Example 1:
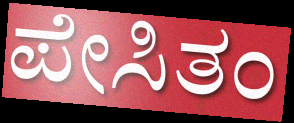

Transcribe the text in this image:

ಪೇಸಿತಂ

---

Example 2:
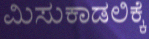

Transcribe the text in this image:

ಮಿಸುಕಾಡಲಿಕ್ಕೆ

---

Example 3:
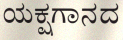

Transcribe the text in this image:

ಯಕ್ಷಗಾನದ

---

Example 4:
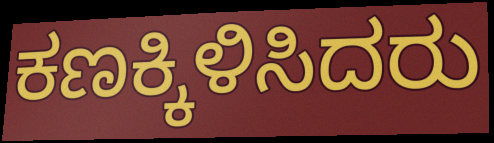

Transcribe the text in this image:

ಕಣಕ್ಕಿಳಿಸಿದರು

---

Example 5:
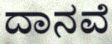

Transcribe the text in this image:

ದಾನವೆ